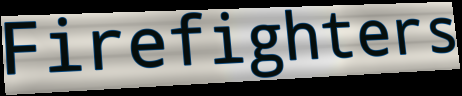
Firefighters